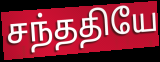
சந்ததியே